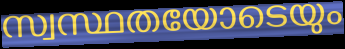
സ്വസ്ഥതയോടെയും